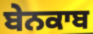
ਬੇਨਕਾਬ